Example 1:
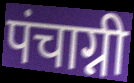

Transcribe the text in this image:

पंचाग्नी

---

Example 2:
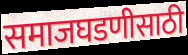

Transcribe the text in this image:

समाजघडणीसाठी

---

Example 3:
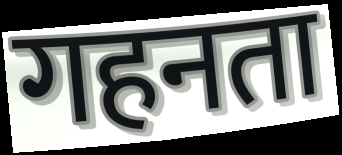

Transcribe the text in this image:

गहनता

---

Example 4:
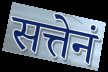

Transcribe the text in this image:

सत्तेनं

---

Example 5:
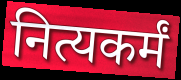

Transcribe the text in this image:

नित्यकर्मं